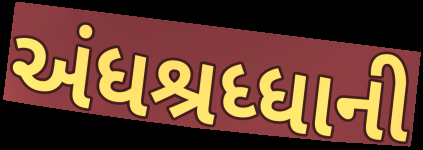
અંધશ્રધ્ધાની